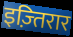
इज़्तिरार